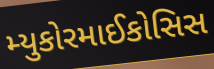
મ્યુકોરમાઈકોસિસ